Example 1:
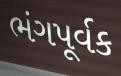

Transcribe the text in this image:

ભંગપૂર્વક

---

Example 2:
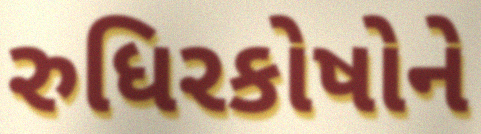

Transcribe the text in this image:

રુધિરકોષોને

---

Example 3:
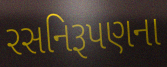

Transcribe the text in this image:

રસનિરૂપણના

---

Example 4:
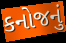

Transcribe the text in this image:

કનોજનું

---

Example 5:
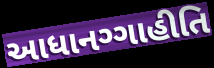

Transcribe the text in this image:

આધાનગ્ગાહીતિ